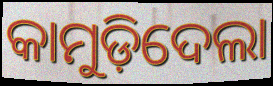
କାମୁଡ଼ିଦେଲା